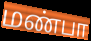
மண்பா